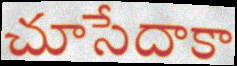
చూసేదాకా